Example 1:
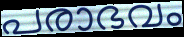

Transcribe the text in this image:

പരാഭവം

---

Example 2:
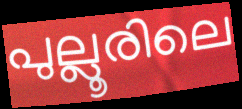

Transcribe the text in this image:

പുല്ലൂരിലെ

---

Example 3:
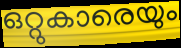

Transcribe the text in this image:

ഒറ്റുകാരെയും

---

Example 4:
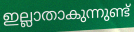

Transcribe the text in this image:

ഇല്ലാതാകുന്നുണ്ട്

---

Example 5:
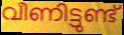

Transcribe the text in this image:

വീണിട്ടുണ്ട്